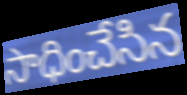
సాధించేసిన